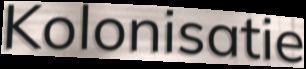
Kolonisatie